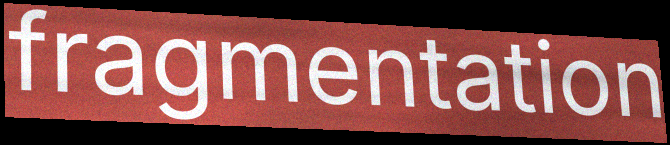
fragmentation